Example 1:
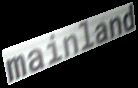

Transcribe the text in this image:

mainland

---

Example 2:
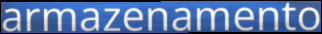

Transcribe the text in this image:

armazenamento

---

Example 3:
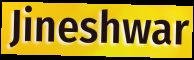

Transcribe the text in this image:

Jineshwar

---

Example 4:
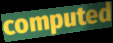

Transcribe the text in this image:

computed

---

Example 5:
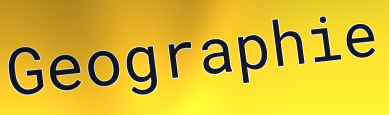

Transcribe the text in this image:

Geographie